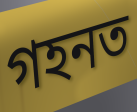
গহনত